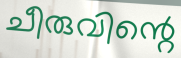
ചീരുവിന്റെ